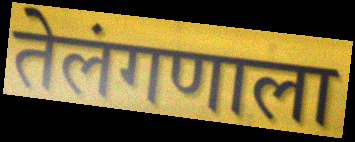
तेलंगणाला